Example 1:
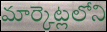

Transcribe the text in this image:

మార్కెట్లలోని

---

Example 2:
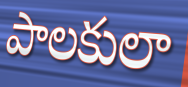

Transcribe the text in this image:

పాలకులా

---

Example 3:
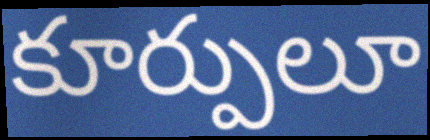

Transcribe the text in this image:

కూర్పులూ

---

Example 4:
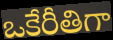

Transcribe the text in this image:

ఒకేరీతిగా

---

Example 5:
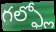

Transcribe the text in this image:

గల్ఫ్లో